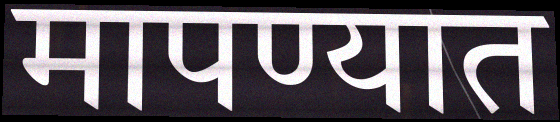
मापण्यात